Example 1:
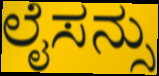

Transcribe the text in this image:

ಲೈಸನ್ಸು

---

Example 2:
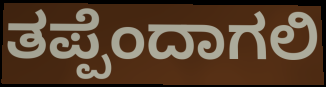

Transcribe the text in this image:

ತಪ್ಪೆಂದಾಗಲಿ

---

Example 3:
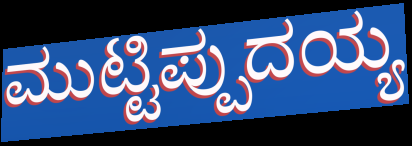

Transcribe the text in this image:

ಮುಟ್ಟಿಪ್ಪುದಯ್ಯ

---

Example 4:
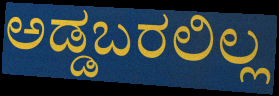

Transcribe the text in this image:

ಅಡ್ಡಬರಲಿಲ್ಲ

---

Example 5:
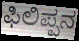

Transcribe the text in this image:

ಫಿಲಿಪ್ಪನ